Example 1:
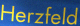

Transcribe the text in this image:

Herzfeld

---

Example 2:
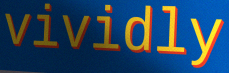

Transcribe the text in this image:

vividly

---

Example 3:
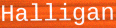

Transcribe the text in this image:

Halligan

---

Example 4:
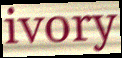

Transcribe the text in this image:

ivory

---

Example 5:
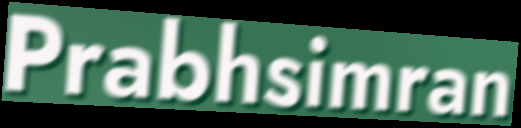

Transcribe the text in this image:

Prabhsimran